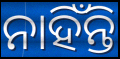
ନାହିଁନ୍ତି